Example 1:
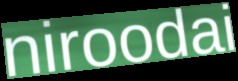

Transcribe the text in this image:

niroodai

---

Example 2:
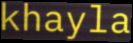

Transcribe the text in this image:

khayla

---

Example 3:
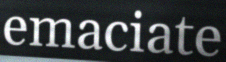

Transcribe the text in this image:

emaciate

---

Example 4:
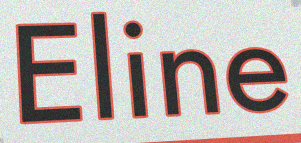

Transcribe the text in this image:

Eline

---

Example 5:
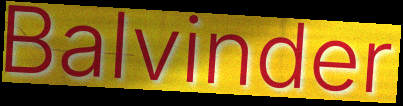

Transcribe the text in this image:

Balvinder